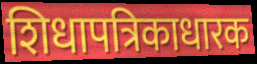
शिधापत्रिकाधारक